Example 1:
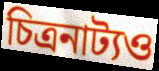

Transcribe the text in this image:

চিত্রনাট্যও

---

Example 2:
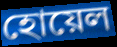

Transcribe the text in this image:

হোয়েল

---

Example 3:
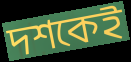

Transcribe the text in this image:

দশকেই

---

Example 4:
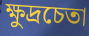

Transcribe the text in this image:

ক্ষুদ্রচেতা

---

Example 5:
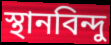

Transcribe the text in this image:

স্থানবিন্দু